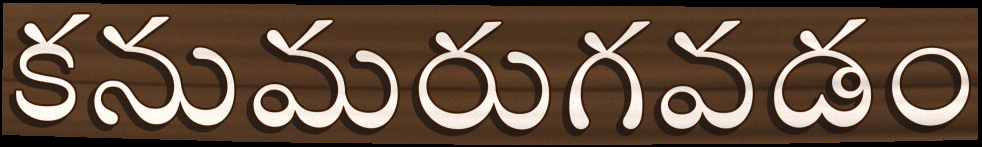
కనుమరుగవడం